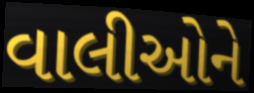
વાલીઓને